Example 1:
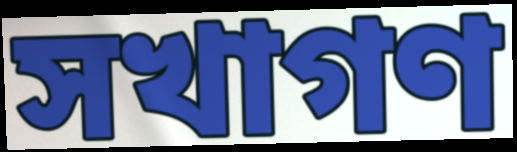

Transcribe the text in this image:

সখাগণ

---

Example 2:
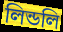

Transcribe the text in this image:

লিন্ডলি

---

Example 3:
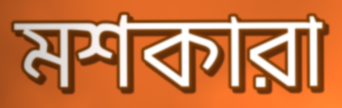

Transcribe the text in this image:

মশকারা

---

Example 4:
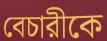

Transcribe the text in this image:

বেচারীকে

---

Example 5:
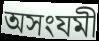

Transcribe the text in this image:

অসংযমী